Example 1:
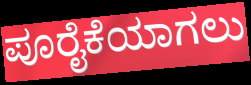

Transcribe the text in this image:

ಪೂರೈಕೆಯಾಗಲು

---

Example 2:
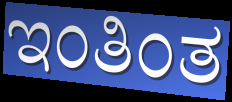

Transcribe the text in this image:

ಇಂತಿಂತ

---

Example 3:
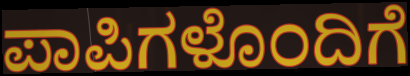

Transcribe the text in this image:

ಪಾಪಿಗಳೊಂದಿಗೆ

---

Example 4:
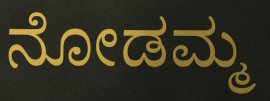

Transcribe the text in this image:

ನೋಡಮ್ಮ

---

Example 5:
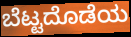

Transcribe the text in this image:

ಬೆಟ್ಟದೊಡೆಯ